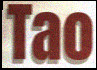
Tao